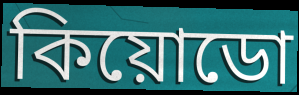
কিয়োডো